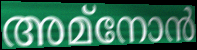
അമ്നോൻ